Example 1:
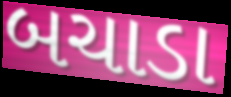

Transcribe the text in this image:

બચાડા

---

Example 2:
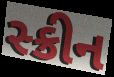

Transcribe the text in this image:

સ્ક્રીન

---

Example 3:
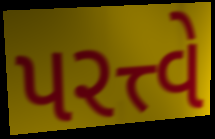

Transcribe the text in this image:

પરત્ત્વે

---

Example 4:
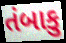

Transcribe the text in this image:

તંબાકુ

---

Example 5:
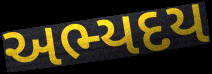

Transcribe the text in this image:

અભ્યદય